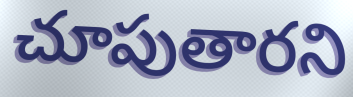
చూపుతారని